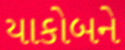
યાકોબને